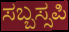
ಸಬ್ಬಸ್ಸಪಿ